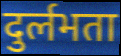
दुर्लभता